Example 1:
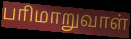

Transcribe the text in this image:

பரிமாறுவாள்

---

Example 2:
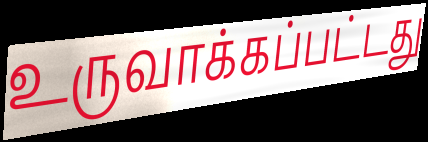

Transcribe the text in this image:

உருவாக்கப்பட்டது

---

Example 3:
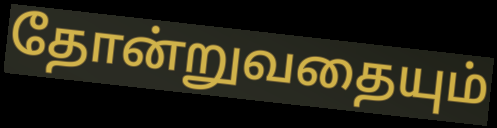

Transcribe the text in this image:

தோன்றுவதையும்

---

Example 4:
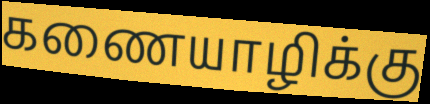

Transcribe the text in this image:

கணையாழிக்கு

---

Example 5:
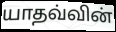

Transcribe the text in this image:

யாதவ்வின்